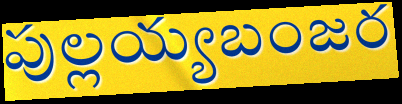
పుల్లయ్యబంజర